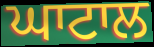
ਘਾਟਾਲ